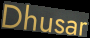
Dhusar